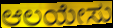
ಆಲಯೇಸು